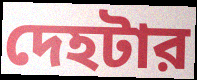
দেহটার